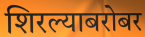
शिरल्याबरोबर